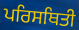
ਪਰਿਸਥਿਤੀ